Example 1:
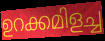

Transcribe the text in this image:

ഉറക്കമിളച്ച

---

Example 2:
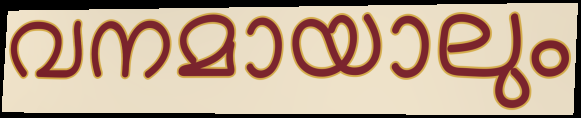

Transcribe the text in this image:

വനമായാലും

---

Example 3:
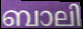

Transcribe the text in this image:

ബാലി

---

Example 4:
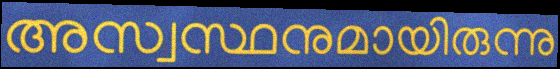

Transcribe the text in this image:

അസ്വസ്ഥനുമായിരുന്നു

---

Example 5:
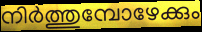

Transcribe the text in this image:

നിർത്തുമ്പോഴേക്കും